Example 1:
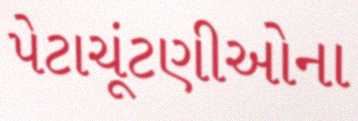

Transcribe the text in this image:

પેટાચૂંટણીઓના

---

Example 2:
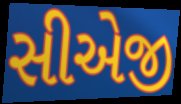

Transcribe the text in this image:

સીએજી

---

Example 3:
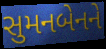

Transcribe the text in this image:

સુમનબેનને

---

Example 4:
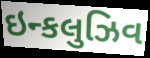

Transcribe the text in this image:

ઇન્કલુઝિવ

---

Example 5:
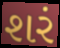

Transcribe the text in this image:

શરં